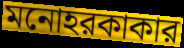
মনোহরকাকার